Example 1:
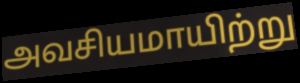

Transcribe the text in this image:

அவசியமாயிற்று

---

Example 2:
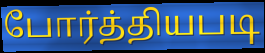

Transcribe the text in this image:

போர்த்தியபடி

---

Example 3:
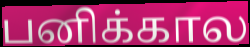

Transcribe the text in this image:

பனிக்கால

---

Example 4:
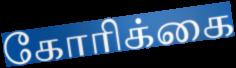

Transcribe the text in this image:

கோரிக்கை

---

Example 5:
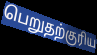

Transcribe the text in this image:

பெறுதற்குரிய